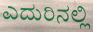
ಎದುರಿನಲ್ಲಿ